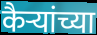
कैऱ्यांच्या